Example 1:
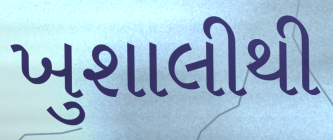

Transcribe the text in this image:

ખુશાલીથી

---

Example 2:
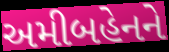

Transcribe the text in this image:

અમીબહેનને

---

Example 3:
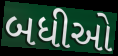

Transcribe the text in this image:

બધીઓ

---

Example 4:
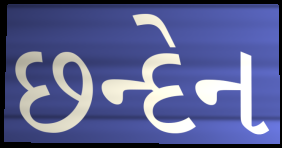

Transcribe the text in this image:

છન્દેન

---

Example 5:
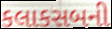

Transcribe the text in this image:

કલાકસબની